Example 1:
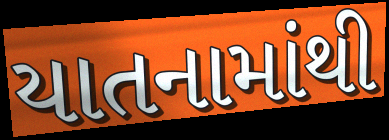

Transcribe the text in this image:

યાતનામાંથી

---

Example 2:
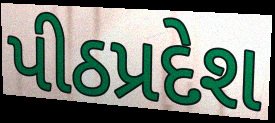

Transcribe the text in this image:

પીઠપ્રદેશ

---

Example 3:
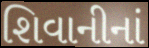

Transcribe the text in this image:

શિવાનીનાં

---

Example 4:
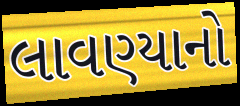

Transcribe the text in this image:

લાવણ્યાનો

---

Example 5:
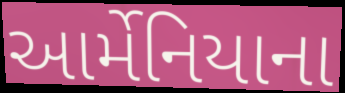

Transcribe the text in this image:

આર્મેનિયાના